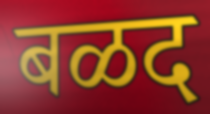
बळद